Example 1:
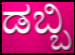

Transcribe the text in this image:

ಡಬ್ಬಿ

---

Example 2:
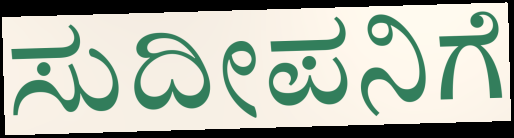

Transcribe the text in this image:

ಸುದೀಪನಿಗೆ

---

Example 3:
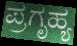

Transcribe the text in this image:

ಪ್ರಗೃಹ್ಯ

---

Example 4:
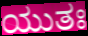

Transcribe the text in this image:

ಯುತಃ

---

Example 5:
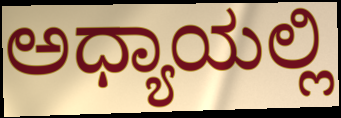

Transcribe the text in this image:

ಅಧ್ಯಾಯಲ್ಲಿ